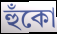
হুঁকো